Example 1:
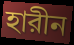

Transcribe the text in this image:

হারীন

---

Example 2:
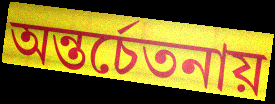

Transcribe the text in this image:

অন্তর্চেতনায়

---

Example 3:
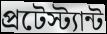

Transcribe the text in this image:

প্রটেস্ট্যান্ট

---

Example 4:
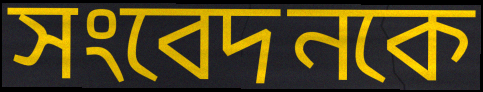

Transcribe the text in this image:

সংবেদনকে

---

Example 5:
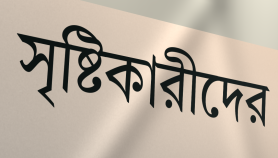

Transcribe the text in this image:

সৃষ্টিকারীদের